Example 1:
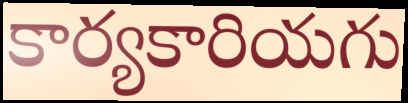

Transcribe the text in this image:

కార్యకారియగు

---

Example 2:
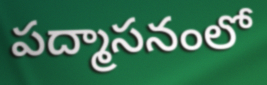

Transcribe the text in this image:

పద్మాసనంలో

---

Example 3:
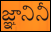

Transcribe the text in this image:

జ్ఞానినీ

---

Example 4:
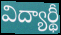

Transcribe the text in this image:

విద్యార్థీ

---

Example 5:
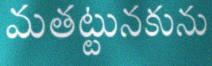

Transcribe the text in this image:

మతట్టునకును